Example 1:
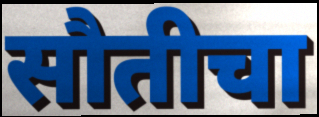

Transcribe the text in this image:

सौतीचा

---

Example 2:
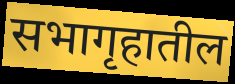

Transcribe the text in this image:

सभागृहातील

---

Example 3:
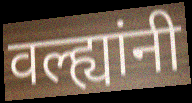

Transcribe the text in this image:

वल्ह्यांनी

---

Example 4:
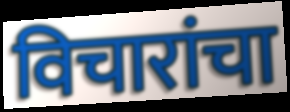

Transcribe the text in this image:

विचारांचा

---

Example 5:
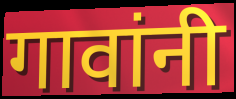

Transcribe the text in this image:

गावांनी